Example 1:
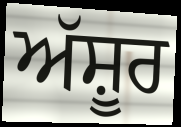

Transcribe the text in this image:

ਅੱਸ਼ੂਰ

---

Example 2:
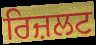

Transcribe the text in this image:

ਰਿਜ਼ਲਟ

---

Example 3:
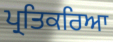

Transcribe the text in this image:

ਪ੍ਰਤਿਕਰਿਆ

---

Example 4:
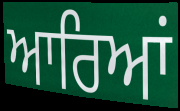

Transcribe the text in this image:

ਆਰਿਆਂ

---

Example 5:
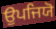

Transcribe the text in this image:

ਉਪਜਿਯੋ